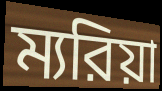
ম্যরিয়া